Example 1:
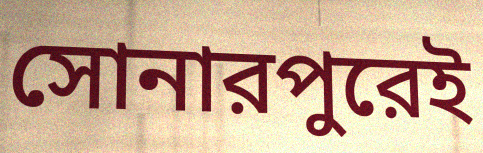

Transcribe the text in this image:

সোনারপুরেই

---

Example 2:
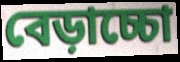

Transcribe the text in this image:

বেড়াচ্চো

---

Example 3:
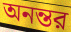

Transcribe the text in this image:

অনন্তর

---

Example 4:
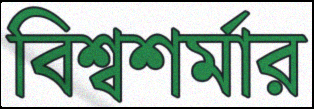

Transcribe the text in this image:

বিশ্বশর্মার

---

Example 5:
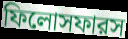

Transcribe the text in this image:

ফিলোসফারস